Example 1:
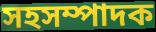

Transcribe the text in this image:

সহসম্পাদক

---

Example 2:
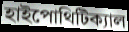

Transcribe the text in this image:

হাইপোথিটিক্যাল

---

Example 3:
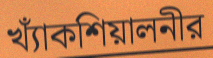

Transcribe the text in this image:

খ্যাঁকশিয়ালনীর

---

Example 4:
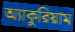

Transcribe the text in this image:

অ্যাকুরিয়াম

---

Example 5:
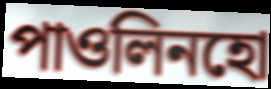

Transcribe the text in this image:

পাওলিনহো